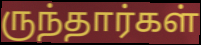
ருந்தார்கள்